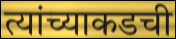
त्यांच्याकडची